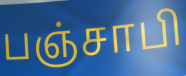
பஞ்சாபி